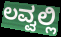
ಲವ್ವಲ್ಲಿ